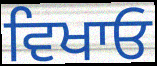
ਵਿਖਾਓ